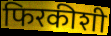
फिरकीशी